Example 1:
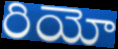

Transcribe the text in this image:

రియో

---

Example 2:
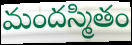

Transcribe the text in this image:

మందస్మితం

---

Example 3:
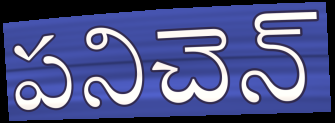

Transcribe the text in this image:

పనిచెన్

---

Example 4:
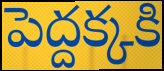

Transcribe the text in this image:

పెద్దక్కకి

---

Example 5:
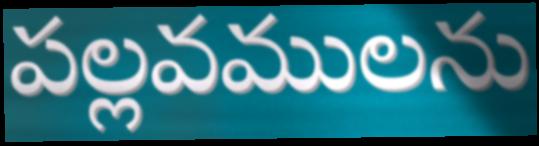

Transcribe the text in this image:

పల్లవములను